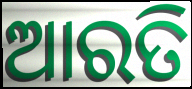
ଆରତି